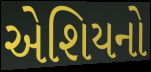
એશિયનો